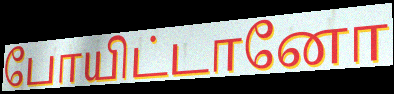
போயிட்டானோ